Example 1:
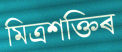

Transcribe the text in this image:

মিত্ৰশক্তিৰ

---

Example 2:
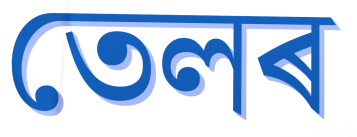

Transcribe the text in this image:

তেলৰ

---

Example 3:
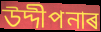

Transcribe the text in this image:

উদ্দীপনাৰ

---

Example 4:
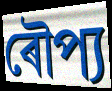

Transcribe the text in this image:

ৰৌপ্য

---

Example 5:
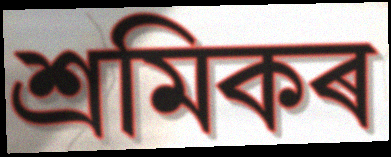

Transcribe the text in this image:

শ্ৰমিকৰ